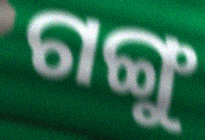
ଗଙ୍ଗୁ